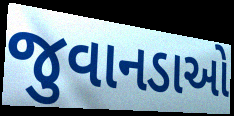
જુવાનડાઓ